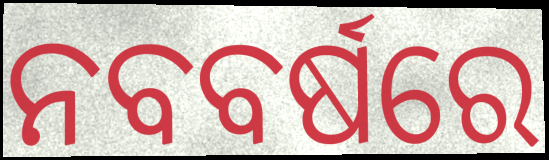
ନବବର୍ଷରେ